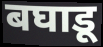
बघाडू